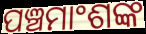
ପଞ୍ଚମାଂଶଙ୍କ